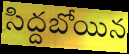
సిద్దబోయిన